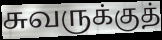
சுவருக்குத்